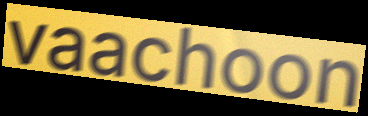
vaachoon